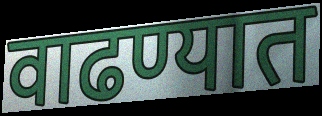
वाढण्यात